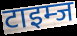
टाइम्ज